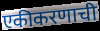
एकीकरणाची